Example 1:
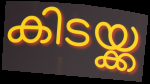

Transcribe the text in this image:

കിടയ്ക്ക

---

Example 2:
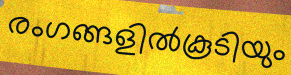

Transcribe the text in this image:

രംഗങ്ങളിൽകൂടിയും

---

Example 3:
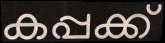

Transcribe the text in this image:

കപ്പക്ക്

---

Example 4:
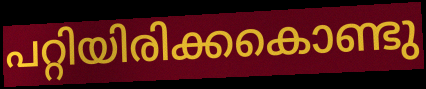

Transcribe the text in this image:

പറ്റിയിരിക്കകൊണ്ടു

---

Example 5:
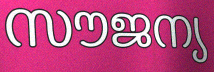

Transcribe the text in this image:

സൗജന്യ